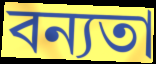
বন্যতা